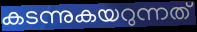
കടന്നുകയറുന്നത്